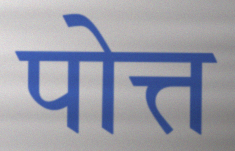
पोत्त